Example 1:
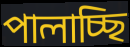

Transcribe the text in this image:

পালাচ্ছি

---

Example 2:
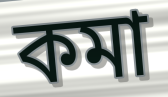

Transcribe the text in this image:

কমা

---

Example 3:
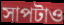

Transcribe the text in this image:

সাপটাও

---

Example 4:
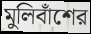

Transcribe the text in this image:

মুলিবাঁশের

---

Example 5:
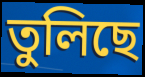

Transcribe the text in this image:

তুলিছে